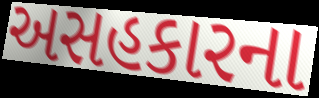
અસહકારના